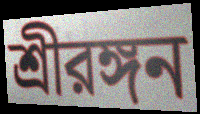
শ্রীরঙ্গন